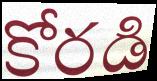
కోరడి